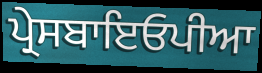
ਪ੍ਰੇਸਬਾਇਓਪੀਆ